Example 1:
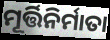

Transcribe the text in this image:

ମୂର୍ତ୍ତିନିର୍ମାତା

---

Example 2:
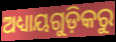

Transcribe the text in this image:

ଅଧ୍ୟାୟଗୁଡ଼ିକରୁ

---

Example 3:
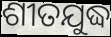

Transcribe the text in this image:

ଶୀତଯୁଦ୍ଧ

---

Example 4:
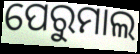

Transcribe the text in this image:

ପେରୁମାଲ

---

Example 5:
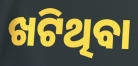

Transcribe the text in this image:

ଖଟିଥିବା